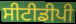
ਸੀਟੀਡੀਪੀ